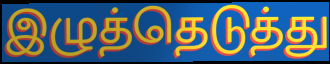
இழுத்தெடுத்து